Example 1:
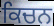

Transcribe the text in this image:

ਕਿਚਨ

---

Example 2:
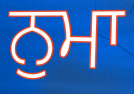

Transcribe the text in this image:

ਨੁਮਾ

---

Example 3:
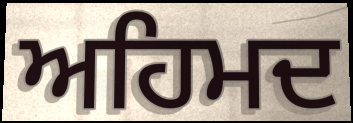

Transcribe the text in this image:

ਅਹਿਮਦ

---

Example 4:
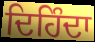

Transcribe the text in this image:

ਦਿਹਿੰਦਾ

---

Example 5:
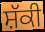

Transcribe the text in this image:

ਸ਼ੱਕੀ